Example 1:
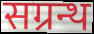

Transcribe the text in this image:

सग्रन्थ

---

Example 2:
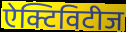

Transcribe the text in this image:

ऐक्टिविटीज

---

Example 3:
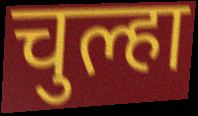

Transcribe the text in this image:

चुल्हा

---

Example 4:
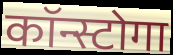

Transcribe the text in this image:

कॉन्स्टोगा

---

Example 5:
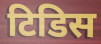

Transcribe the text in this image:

टिडिस